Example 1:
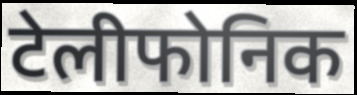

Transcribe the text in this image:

टेलीफोनिक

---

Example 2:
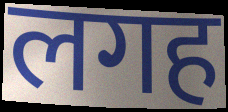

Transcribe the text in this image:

लगह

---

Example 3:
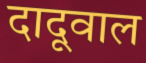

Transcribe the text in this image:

दादूवाल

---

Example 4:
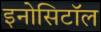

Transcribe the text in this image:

इनोसिटॉल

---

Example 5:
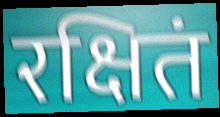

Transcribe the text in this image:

रक्षितं